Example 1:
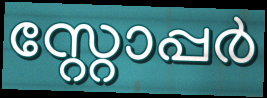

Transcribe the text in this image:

സ്റ്റോപ്പർ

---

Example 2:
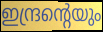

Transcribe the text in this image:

ഇന്ദ്രന്റെയും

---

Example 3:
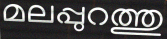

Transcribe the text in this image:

മലപ്പുറത്തു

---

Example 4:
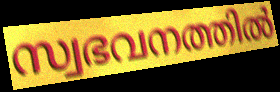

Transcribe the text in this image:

സ്വഭവനത്തിൽ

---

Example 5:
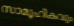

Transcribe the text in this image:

സാമൂഹികവും